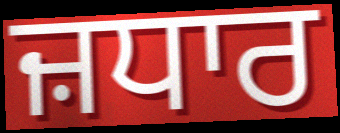
ਜ਼ਧਾਰ